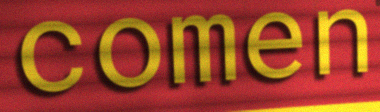
comen